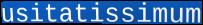
usitatissimum